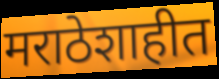
मराठेशाहीत